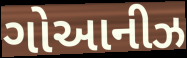
ગોઆનીઝ